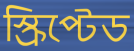
স্ক্রিপ্টেড